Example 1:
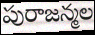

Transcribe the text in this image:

పురాజన్మల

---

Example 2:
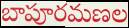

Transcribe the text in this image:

బాపూరమణల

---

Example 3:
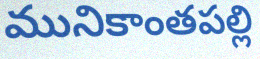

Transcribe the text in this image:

మునికాంతపల్లి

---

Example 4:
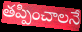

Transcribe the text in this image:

తప్పించాలనే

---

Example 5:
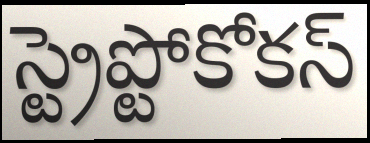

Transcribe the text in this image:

స్ట్రెప్టోకోకస్